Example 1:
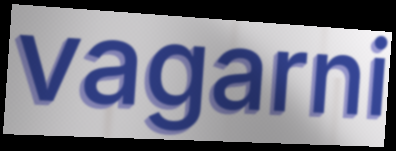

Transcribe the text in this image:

vagarni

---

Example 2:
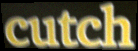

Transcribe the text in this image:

cutch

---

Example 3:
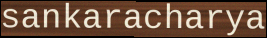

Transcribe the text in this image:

sankaracharya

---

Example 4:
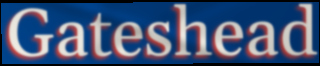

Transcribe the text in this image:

Gateshead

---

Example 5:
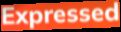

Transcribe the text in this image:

Expressed